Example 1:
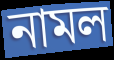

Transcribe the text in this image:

নামল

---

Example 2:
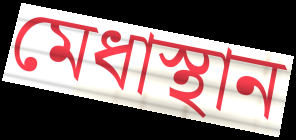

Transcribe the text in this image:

মেধাস্থান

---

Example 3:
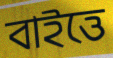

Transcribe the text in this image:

বাইত্তে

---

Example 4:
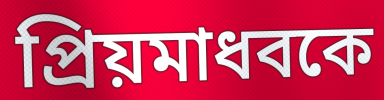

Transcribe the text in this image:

প্রিয়মাধবকে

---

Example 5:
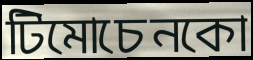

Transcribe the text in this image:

টিমোচেনকো